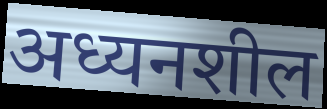
अध्यनशील